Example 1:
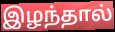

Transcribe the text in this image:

இழந்தால்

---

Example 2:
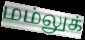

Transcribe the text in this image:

மம்லுக்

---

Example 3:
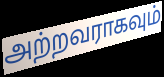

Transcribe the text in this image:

அற்றவராகவும்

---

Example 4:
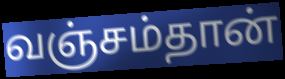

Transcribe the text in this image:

வஞ்சம்தான்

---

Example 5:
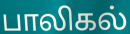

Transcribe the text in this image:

பாலிகல்